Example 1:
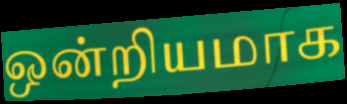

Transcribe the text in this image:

ஒன்றியமாக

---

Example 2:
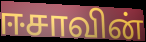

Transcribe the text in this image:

ஈசாவின்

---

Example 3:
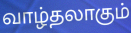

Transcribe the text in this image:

வாழ்தலாகும்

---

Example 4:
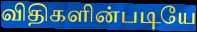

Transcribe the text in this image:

விதிகளின்படியே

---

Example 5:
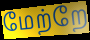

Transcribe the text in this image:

மேற்றே